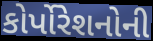
કોર્પોરેશનોની